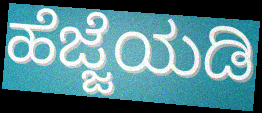
ಹೆಜ್ಜೆಯಡಿ